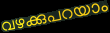
വഴക്കുപറയാം